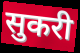
सुकरी